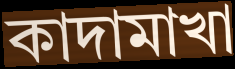
কাদামাখা